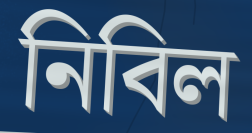
নিবিল